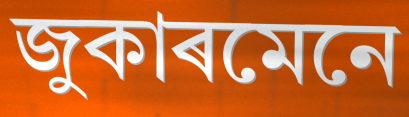
জুকাৰমেনে